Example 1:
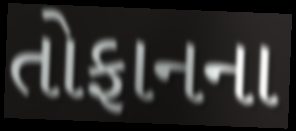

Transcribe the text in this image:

તોફાનના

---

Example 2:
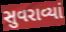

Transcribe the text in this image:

સુવરાવ્યાં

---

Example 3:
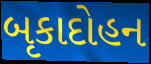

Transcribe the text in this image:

બૃકાદોહન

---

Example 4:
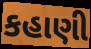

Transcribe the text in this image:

કહાણી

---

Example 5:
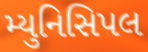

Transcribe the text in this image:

મ્યુનિસિપલ